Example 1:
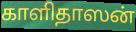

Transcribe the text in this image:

காளிதாஸன்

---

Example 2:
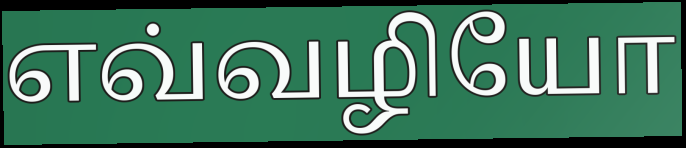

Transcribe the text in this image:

எவ்வழியோ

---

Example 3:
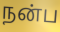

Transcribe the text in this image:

நன்ப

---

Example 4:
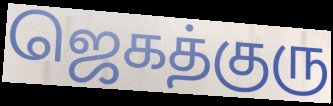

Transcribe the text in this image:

ஜெகத்குரு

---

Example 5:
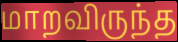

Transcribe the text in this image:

மாறவிருந்த